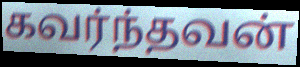
கவர்ந்தவன்